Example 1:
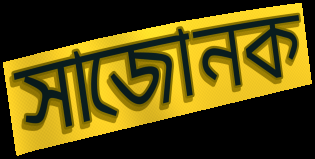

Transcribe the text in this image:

সাজোনক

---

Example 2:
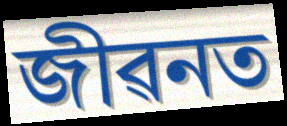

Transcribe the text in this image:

জীৱনত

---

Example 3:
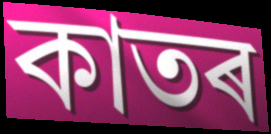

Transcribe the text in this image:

কাতৰ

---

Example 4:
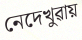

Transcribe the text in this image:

নেদেখুৱায়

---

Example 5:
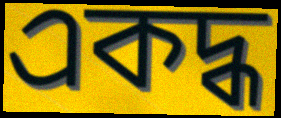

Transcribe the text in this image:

একদ্ধ